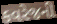
કવરેજની